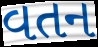
વતન